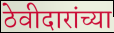
ठेवीदारांच्या